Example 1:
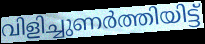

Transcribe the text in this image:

വിളിച്ചുണർത്തിയിട്ട്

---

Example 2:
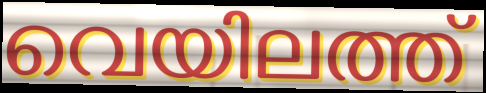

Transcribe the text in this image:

വെയിലത്ത്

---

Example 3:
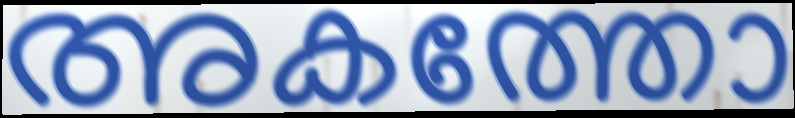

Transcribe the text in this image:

അകത്തോ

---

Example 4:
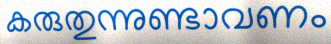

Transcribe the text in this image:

കരുതുന്നുണ്ടാവണം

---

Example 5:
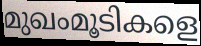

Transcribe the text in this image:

മുഖംമൂടികളെ